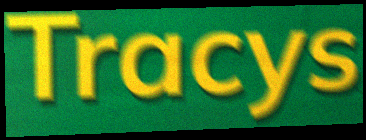
Tracys